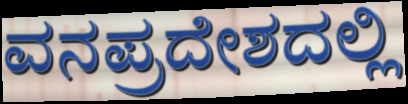
ವನಪ್ರದೇಶದಲ್ಲಿ